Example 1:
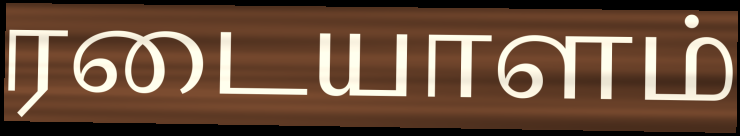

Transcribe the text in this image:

ரடையாளம்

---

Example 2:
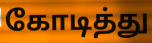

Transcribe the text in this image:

கோடித்து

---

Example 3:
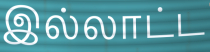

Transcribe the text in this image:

இல்லாட்ட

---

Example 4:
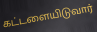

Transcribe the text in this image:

கட்டளையிடுவார்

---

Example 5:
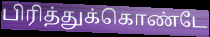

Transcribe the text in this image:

பிரித்துக்கொண்டே